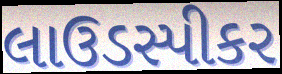
લાઉડસ્પીકર